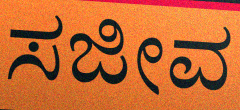
ಸಜೀವ